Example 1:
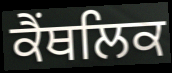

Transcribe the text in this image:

ਕੈਂਥਲਿਕ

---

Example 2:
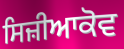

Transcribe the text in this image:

ਸਿਜ਼ੀਆਕੋਵ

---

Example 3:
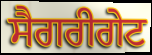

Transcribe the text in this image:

ਸੈਗਰੀਗੇਟ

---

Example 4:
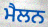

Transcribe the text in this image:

ਮੈਲਨ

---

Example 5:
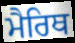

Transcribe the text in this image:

ਮੈਰਿਥ